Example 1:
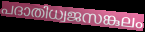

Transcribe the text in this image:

പദാതിധ്വജസങ്കുലം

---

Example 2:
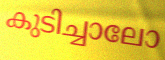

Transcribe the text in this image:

കുടിച്ചാലോ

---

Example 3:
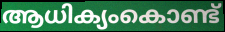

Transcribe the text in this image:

ആധിക്യംകൊണ്ട്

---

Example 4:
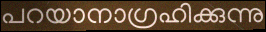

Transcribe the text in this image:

പറയാനാഗ്രഹിക്കുന്നു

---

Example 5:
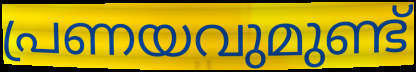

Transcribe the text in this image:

പ്രണയവുമുണ്ട്